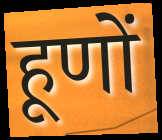
हूणों